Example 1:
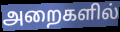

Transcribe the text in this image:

அறைகளில்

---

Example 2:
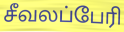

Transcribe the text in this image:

சீவலப்பேரி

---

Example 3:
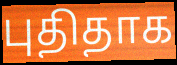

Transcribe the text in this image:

புதிதாக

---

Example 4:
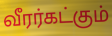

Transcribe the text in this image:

வீரர்கட்கும்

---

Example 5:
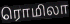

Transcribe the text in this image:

ரொமிலா